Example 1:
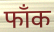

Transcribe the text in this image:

फाँक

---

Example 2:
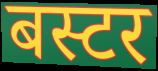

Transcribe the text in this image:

बस्टर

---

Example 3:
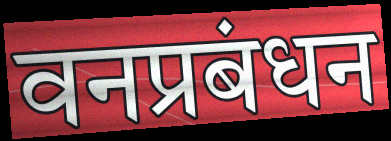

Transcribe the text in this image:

वनप्रबंधन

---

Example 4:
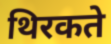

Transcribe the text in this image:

थिरकते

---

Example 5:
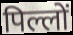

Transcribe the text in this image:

पिल्लों